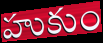
హుకుం